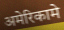
अमेरिकामे